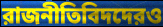
রাজনীতিবিদদেরও